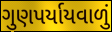
ગુણપર્યાયવાળું